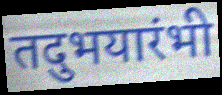
तदुभयारंभी